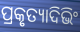
ପ୍ରକୃତ୍ୟାଦିଭିଂ